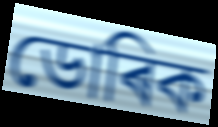
ডোৰিক